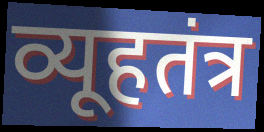
व्यूहतंत्र